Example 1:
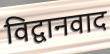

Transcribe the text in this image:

विद्वानवाद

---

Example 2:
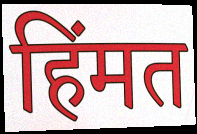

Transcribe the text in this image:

हिंमत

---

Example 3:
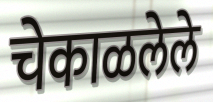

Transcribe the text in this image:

चेकाळलेले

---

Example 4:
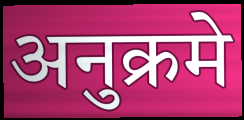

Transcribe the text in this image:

अनुक्रमे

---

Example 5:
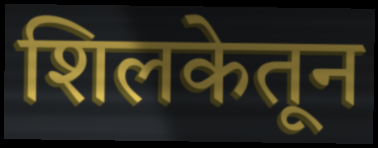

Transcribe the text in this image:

शिलकेतून